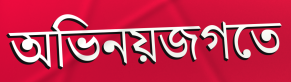
অভিনয়জগতে